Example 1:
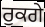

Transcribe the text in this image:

ਰੁਕਗੇ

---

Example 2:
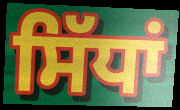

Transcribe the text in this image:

ਸਿੱਧਾਂ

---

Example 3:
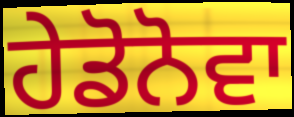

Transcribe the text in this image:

ਹੇਡੋਨੋਵਾ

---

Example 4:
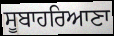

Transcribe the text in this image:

ਸੂਬਾਹਰਿਆਣਾ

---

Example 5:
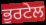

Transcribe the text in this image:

ਭੁਰਟੇਲ